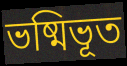
ভষ্মিভূত